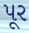
પૂર